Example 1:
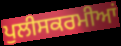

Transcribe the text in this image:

ਪੁਲੀਸਕਰਮੀਆਂ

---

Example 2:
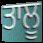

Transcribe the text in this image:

ਤਾਲੂ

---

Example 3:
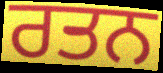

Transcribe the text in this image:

ਰਤਨ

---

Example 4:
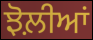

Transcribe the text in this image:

ਝੋਲ਼ੀਆਂ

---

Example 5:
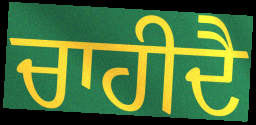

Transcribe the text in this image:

ਚਾਹੀਦੈ